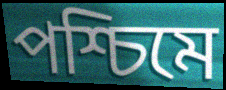
পশ্চিমে